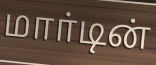
மார்டின்